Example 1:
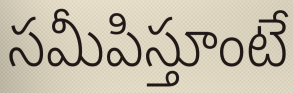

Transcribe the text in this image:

సమీపిస్తూంటే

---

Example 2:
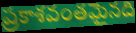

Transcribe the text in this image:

ప్రకాశవంతమైనది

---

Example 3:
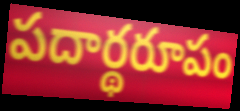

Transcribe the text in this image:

పదార్థరూపం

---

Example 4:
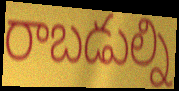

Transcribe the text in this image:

రాబడుల్ని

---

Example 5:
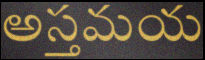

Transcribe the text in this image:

అస్తమయ